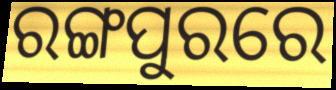
ରଙ୍ଗପୁରରେ